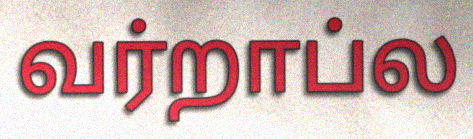
வர்றாப்ல